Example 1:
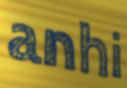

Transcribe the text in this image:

anhi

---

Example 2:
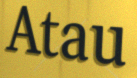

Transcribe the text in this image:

Atau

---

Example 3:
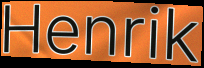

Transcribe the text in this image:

Henrik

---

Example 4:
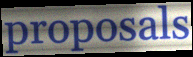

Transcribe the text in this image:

proposals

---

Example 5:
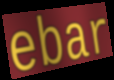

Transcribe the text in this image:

ebar